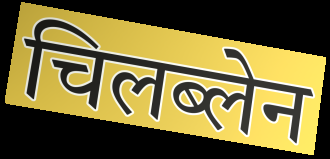
चिलब्लेन